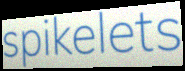
spikelets